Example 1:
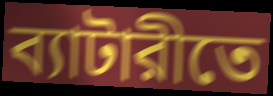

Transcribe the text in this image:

ব্যাটারীতে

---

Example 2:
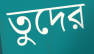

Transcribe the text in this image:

তুদের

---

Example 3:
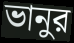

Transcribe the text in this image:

ভানুর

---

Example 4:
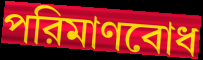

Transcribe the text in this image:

পরিমাণবোধ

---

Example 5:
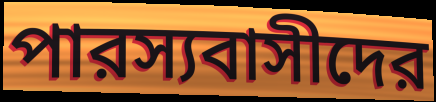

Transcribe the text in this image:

পারস্যবাসীদের